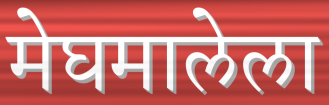
मेघमालेला